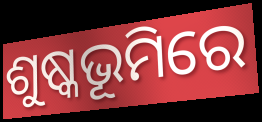
ଶୁଷ୍କଭୂମିରେ